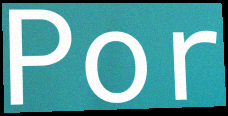
Por